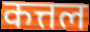
कत्तल